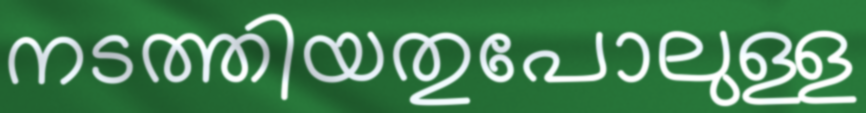
നടത്തിയതുപോലുള്ള